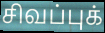
சிவப்புக்